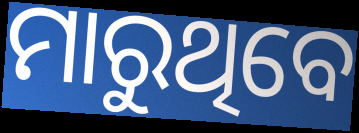
ମାରୁଥିବେ